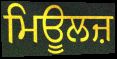
ਮਿਊਲਜ਼